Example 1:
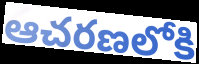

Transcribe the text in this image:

ఆచరణలోకి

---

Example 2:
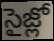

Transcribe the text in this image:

సైజ్లో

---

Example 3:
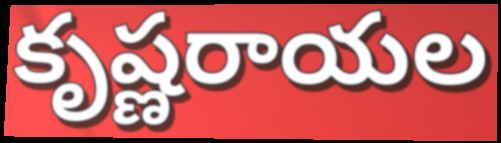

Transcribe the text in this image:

కృష్ణరాయల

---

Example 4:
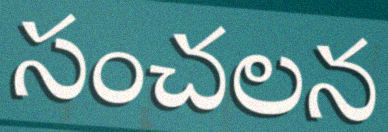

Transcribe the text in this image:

సంచలన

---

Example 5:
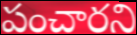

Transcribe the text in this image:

పంచారని